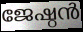
ജേഷ്ഠൻ